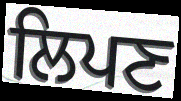
ਲਿਪਣ